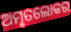
ଅମୃତଲୋକର